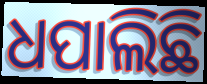
ଧପାଲିଛି